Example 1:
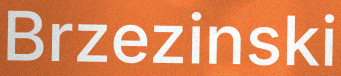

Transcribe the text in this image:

Brzezinski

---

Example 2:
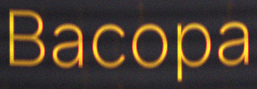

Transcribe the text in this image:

Bacopa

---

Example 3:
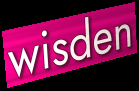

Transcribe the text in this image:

wisden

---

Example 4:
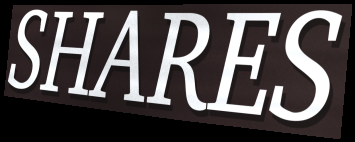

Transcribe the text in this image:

SHARES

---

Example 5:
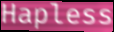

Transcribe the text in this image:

Hapless